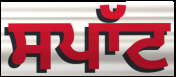
ਸਪਾੱਟ